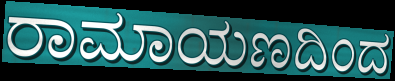
ರಾಮಾಯಣದಿಂದ